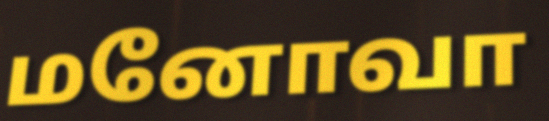
மனோவா